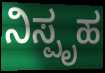
ನಿಸ್ಪೃಹ